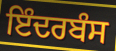
ਇੰਦਰਬੰਸ